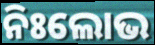
ନିଃଲୋଭ